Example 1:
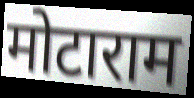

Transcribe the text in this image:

मोटाराम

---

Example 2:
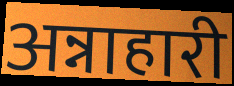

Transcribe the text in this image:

अन्नाहारी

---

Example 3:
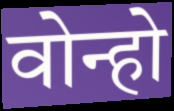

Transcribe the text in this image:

वोन्हो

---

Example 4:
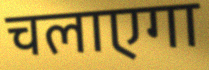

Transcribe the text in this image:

चलाएगा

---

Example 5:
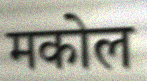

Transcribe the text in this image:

मकोल